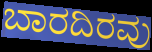
ಬಾರದಿರವು